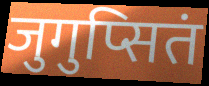
जुगुप्सितं